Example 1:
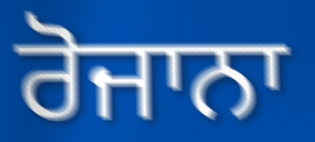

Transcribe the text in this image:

ਰੋਜਾਨਾ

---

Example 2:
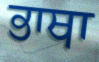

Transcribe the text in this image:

ਭਾਥਾ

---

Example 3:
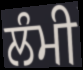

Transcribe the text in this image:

ਲੰਮੀ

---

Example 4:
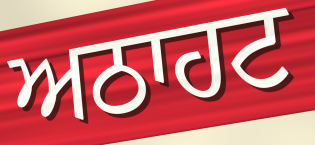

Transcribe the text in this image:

ਅਠਾਹਟ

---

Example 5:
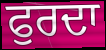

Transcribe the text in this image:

ਫੁਰਦਾ